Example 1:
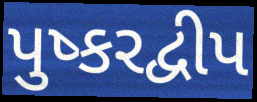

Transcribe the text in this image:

પુષ્કરદ્વીપ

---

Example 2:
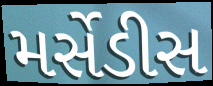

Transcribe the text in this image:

મર્સેડીસ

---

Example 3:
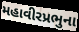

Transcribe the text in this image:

મહાવીરપ્રભુના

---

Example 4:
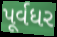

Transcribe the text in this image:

પૂર્વધર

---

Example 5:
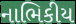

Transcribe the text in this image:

નાભિકીય